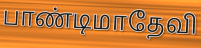
பாண்டிமாதேவி